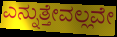
ಎನ್ನುತ್ತೇವಲ್ಲವೇ